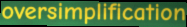
oversimplification